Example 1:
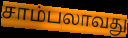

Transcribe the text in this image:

சாம்பலாவது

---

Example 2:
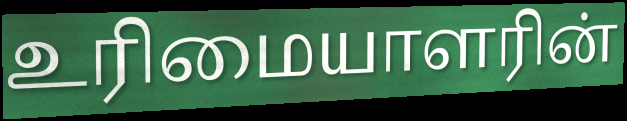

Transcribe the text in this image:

உரிமையாளரின்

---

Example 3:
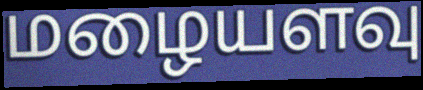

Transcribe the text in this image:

மழையளவு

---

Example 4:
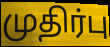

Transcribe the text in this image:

முதிர்பு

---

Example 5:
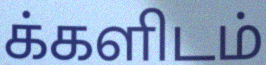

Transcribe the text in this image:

க்களிடம்